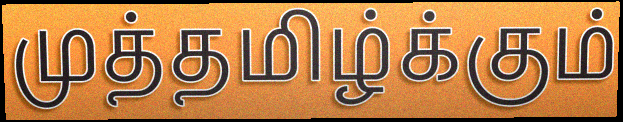
முத்தமிழ்க்கும்